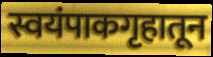
स्वयंपाकगृहातून